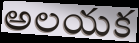
అలయక